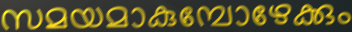
സമയമാകുമ്പോഴേക്കും